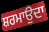
ਸ਼ਰਮਾਉਦਾ